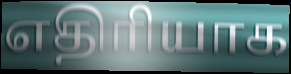
எதிரியாக